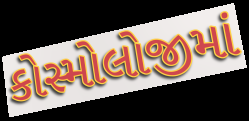
કોસ્મોલોજીમાં